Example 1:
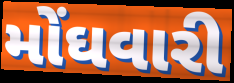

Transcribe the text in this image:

મોંઘવારી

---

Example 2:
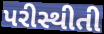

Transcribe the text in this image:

પરીસ્થીતી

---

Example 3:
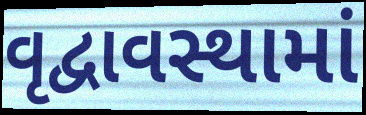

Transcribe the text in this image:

વૃદ્વાવસ્થામાં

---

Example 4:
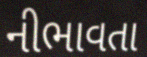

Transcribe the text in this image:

નીભાવતા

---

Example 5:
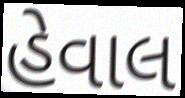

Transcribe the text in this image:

હેવાલ